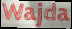
Wajda